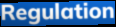
Regulation